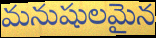
మనుషులమైన